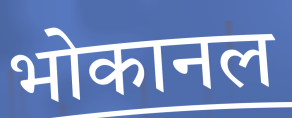
भोकानल